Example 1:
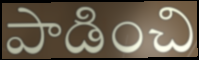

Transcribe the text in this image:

పాడించి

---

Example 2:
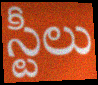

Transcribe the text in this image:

స్టీలు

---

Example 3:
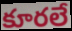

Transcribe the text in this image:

కూరలే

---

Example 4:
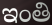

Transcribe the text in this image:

ఇంతి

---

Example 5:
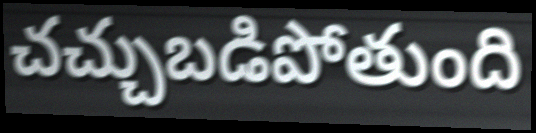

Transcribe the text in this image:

చచ్చుబడిపోతుంది